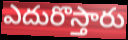
ఎదురొస్తారు